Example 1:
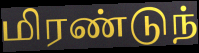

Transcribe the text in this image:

மிரண்டுந்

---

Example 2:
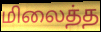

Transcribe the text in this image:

மிலைத்த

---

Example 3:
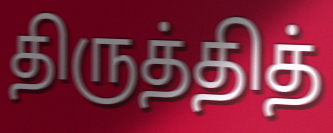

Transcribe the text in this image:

திருத்தித்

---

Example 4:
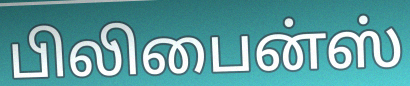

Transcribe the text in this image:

பிலிபைன்ஸ்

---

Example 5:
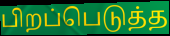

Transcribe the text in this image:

பிறப்பெடுத்த